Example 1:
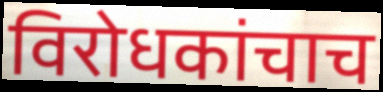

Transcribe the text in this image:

विरोधकांचाच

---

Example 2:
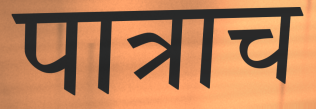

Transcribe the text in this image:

पात्राच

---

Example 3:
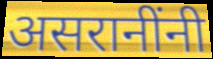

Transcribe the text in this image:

असरानींनी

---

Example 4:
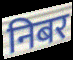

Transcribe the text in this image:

निबर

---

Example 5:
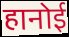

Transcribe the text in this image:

हानोई